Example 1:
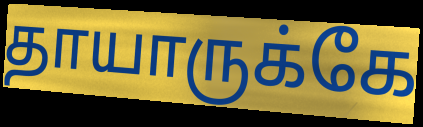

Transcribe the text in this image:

தாயாருக்கே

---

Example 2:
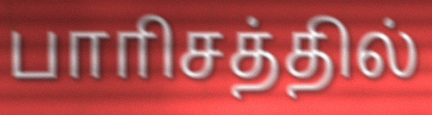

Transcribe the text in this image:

பாரிசத்தில்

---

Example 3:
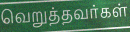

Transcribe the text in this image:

வெறுத்தவர்கள்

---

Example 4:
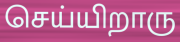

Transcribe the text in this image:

செய்யிறாரு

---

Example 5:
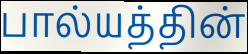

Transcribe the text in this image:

பால்யத்தின்